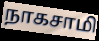
நாகசாமி